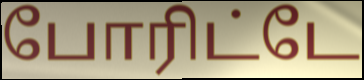
போரிட்டே